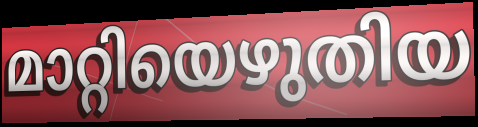
മാറ്റിയെഴുതിയ